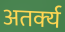
अतर्क्‍य